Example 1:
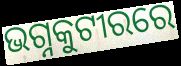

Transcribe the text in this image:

ଭଗ୍ନକୁଟୀରରେ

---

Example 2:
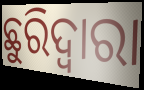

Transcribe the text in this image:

ଛୁରିଦ୍ୱାରା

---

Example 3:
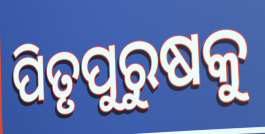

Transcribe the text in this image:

ପିତୃପୁରୁଷକୁ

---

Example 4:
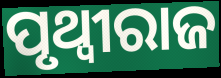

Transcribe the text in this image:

ପୃଥ୍ବୀରାଜ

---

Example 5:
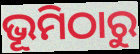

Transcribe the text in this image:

ଭୂମିଠାରୁ